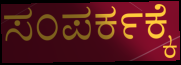
ಸಂಪರ್ಕಕ್ಕೆ